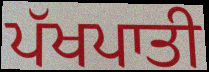
ਪੱਖਪਾਤੀ